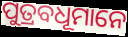
ପୁତ୍ରବଧୂମାନେ